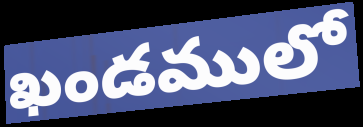
ఖండములో